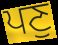
ਪਣੁ